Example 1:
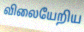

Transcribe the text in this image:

விலையேறிய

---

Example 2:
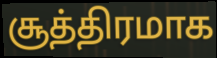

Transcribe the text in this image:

சூத்திரமாக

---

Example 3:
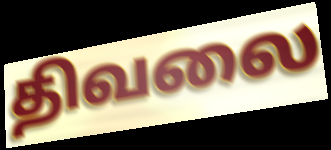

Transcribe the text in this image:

திவலை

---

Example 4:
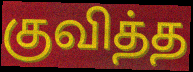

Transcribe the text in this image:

குவித்த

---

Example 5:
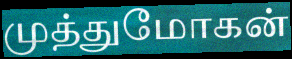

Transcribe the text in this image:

முத்துமோகன்